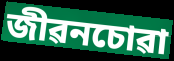
জীৱনচোৱা